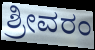
ಶ್ರೀವರಂ